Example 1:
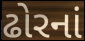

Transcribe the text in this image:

ઢોરનાં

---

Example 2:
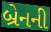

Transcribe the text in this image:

બ્રેનની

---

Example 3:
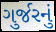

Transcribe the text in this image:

ગુર્જરનું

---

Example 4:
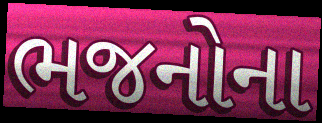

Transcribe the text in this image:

ભજનોના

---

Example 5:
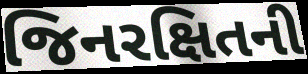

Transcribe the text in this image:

જિનરક્ષિતની